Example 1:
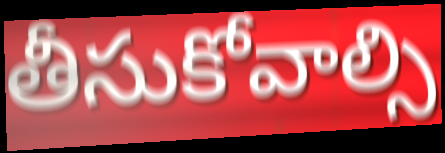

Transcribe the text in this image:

తీసుకోవాల్సి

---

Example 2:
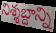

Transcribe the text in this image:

నిశ్శబ్దాన్ని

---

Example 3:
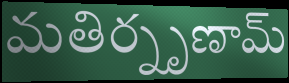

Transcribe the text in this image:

మతిర్నృణామ్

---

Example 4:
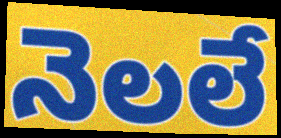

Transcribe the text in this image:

నెలలే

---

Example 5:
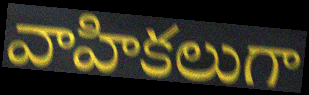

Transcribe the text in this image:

వాహికలుగా